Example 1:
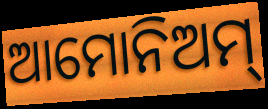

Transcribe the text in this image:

ଆମୋନିଅମ୍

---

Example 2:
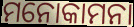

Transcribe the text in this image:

ମନୋକାମନା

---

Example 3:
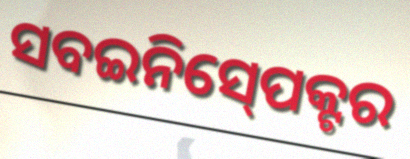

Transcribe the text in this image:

ସବଇନିସ୍‍ପେକ୍ଟର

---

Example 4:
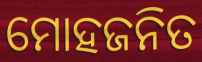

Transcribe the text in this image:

ମୋହଜନିତ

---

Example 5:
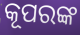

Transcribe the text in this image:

କୂପରଙ୍କ